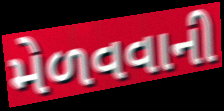
મેળવવાની